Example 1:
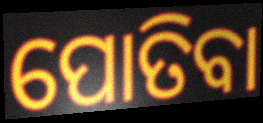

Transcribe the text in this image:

ପୋତିବା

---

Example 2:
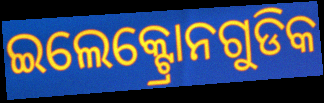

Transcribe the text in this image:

ଇଲେକ୍ଟ୍ରୋନଗୁଡିକ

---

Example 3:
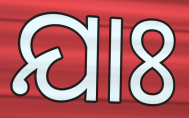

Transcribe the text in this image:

ଯାଃ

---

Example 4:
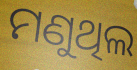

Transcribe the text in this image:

ମଣୁଥିଲ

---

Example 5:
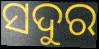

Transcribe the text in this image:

ସଦୁର